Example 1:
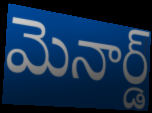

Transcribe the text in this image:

మెనార్డ్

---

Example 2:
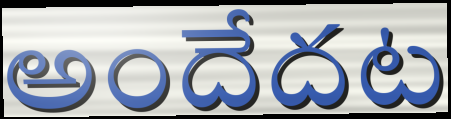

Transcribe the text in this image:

అందేదట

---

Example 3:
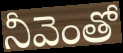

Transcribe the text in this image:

నీవెంతో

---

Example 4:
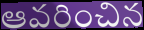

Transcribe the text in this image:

ఆవరించిన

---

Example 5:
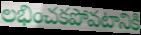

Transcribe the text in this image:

లభించకపోవటానికి